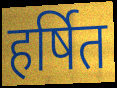
हर्षित